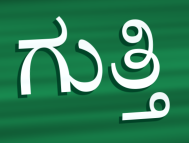
ಗುತ್ತಿ